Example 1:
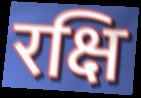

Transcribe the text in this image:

रक्षि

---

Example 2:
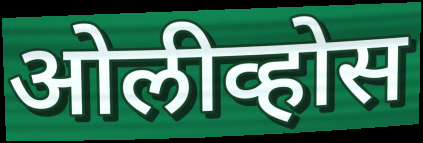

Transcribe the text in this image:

ओलीव्होस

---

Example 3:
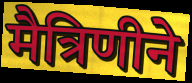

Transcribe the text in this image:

मैत्रिणीने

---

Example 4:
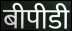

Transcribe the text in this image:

बीपीडी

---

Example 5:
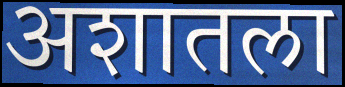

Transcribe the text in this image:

अशातला